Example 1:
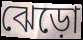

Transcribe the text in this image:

ঝেড়ো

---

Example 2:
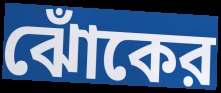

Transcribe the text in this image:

ঝোঁকের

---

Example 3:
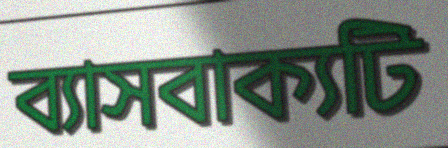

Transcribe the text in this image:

ব্যাসবাক্যটি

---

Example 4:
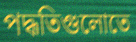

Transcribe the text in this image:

পদ্ধতিগুলোতে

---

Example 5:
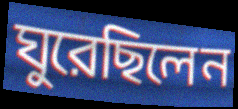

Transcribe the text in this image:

ঘুরেছিলেন